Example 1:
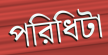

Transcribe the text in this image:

পরিধিটা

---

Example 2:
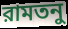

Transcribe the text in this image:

রামতনু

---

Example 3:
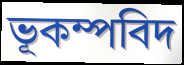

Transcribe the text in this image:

ভূকম্পবিদ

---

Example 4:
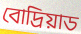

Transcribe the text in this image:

বোদ্রিয়াড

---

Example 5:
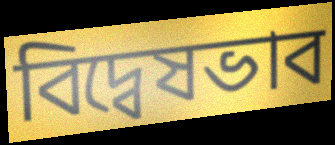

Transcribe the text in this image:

বিদ্বেষভাব